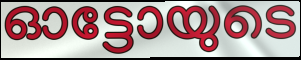
ഓട്ടോയുടെ